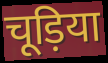
चूड़िया